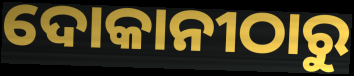
ଦୋକାନୀଠାରୁ